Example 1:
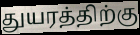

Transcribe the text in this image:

துயரத்திற்கு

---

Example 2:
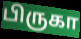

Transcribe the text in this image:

பிருகா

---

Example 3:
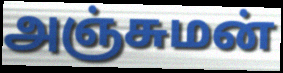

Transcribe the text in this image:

அஞ்சுமன்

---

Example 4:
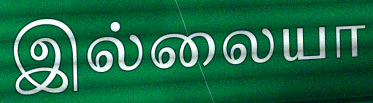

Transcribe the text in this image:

இல்லையா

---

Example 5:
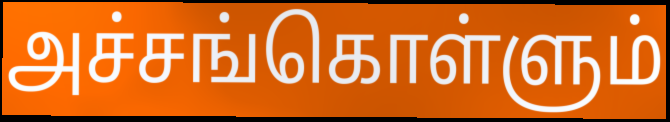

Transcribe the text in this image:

அச்சங்கொள்ளும்